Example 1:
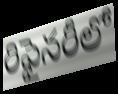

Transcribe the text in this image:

రిఫైనరీలో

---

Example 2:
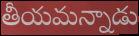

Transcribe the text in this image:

తీయమన్నాడు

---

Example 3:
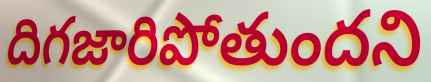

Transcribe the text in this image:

దిగజారిపోతుందని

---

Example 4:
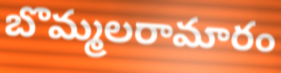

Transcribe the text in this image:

బొమ్మలరామారం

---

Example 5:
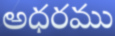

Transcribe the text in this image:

అధరము